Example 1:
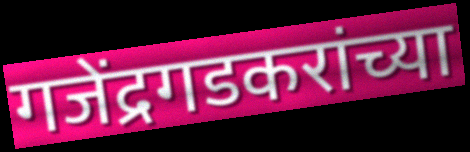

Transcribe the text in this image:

गजेंद्रगडकरांच्या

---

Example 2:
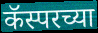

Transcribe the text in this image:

कॅस्परच्या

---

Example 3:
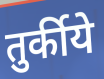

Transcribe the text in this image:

तुर्कीये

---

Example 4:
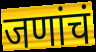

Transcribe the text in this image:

जणांचं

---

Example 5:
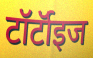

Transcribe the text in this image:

टॉर्टॉइज